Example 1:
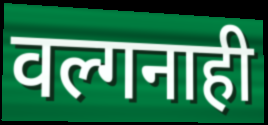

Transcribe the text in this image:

वल्गनाही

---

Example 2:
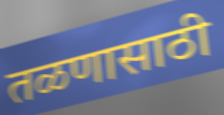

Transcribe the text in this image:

तळणासाठी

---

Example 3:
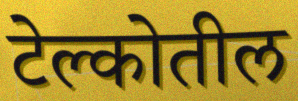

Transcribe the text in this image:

टेल्कोतील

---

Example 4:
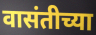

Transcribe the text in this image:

वासंतीच्या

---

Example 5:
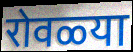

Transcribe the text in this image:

रोवळ्या